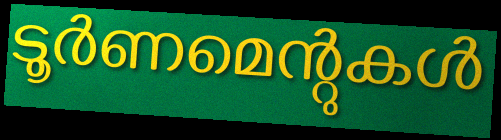
ടൂർണമെന്റുകൾ